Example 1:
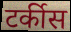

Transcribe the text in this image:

टर्कीस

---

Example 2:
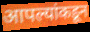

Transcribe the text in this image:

आपल्यांकडून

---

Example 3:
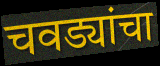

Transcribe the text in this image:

चवड्यांचा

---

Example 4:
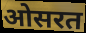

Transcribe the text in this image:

ओसरत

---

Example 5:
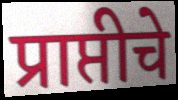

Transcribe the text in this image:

प्राप्तीचे